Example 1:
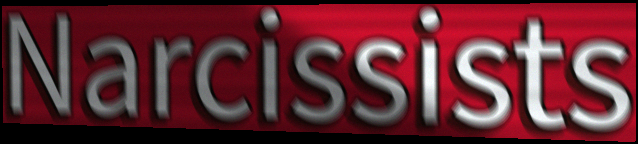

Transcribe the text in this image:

Narcissists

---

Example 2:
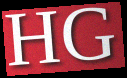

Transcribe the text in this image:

HG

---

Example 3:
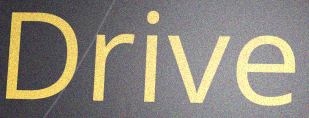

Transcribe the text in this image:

Drive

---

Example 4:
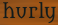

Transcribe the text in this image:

hurly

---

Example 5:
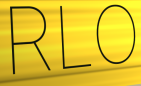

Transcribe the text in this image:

RLO